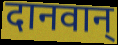
दानवान्